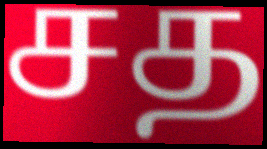
சத